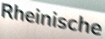
Rheinische